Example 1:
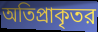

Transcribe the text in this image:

অতিপ্রাকৃতর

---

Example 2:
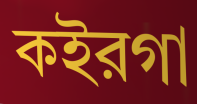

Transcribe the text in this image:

কইরগা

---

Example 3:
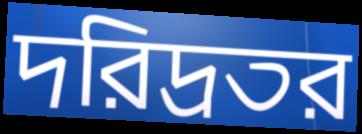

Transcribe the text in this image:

দরিদ্রতর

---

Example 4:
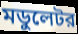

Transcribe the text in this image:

মডুলেটর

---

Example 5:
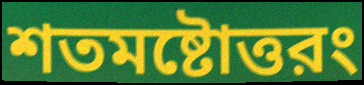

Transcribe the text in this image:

শতমষ্টোত্তরং